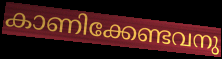
കാണിക്കേണ്ടവനു